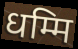
धम्मि